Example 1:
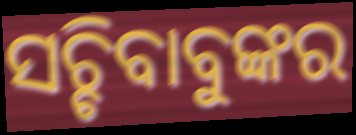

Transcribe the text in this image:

ସଚ୍ଚିବାବୁଙ୍କର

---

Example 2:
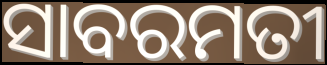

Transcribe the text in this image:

ସାବରମତୀ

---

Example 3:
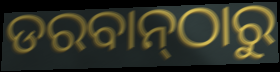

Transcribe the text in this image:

ଡରବାନ୍‌ଠାରୁ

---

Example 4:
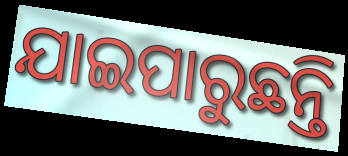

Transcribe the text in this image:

ଯାଇପାରୁଛନ୍ତି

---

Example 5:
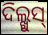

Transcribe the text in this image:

ଦିଲ୍ଖୁସ୍